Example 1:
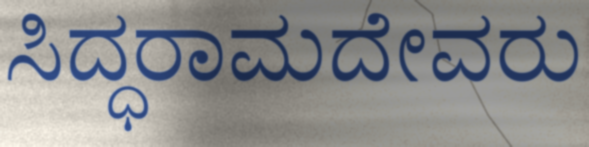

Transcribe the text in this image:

ಸಿದ್ಧರಾಮದೇವರು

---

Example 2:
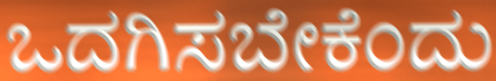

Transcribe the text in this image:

ಒದಗಿಸಬೇಕೆಂದು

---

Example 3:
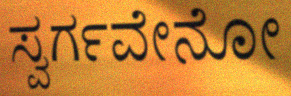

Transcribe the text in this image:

ಸ್ವರ್ಗವೇನೋ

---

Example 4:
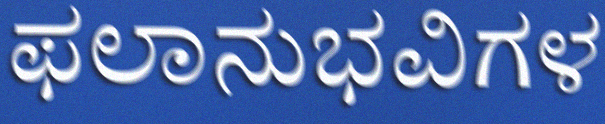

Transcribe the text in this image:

ಫಲಾನುಭವಿಗಳ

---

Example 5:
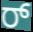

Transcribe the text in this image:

ರ್